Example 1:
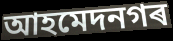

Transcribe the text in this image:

আহমেদনগৰ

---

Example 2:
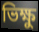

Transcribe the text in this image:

ভিক্ষু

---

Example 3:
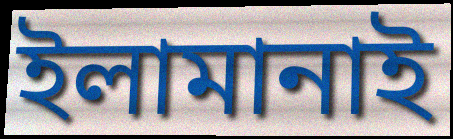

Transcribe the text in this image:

ইলামানাই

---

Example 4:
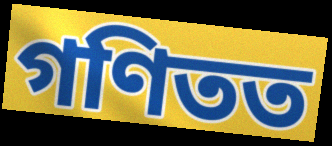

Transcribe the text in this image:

গণিতত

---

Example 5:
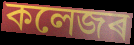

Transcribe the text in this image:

কলেজৰ